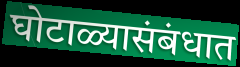
घोटाळ्यासंबंधात